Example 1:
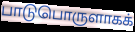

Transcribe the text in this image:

பாடுபொருளாகக்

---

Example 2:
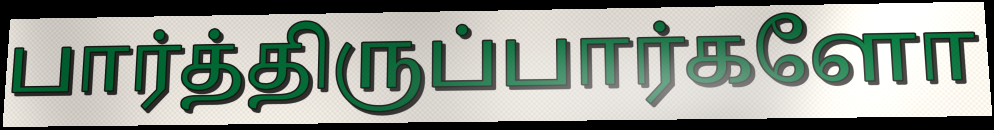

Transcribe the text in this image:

பார்த்திருப்பார்களோ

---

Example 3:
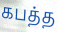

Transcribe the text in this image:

கபத்த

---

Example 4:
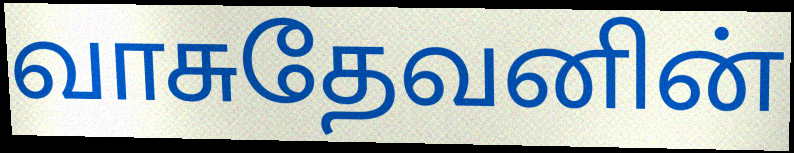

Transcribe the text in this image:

வாசுதேவனின்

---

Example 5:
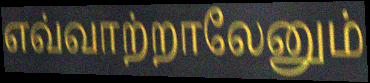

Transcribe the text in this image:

எவ்வாற்றாலேனும்